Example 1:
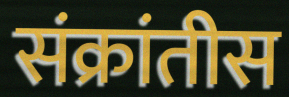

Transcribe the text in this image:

संक्रांतीस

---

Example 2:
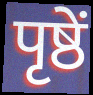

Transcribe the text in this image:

पृष्ठें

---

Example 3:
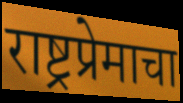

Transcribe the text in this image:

राष्ट्रप्रेमाचा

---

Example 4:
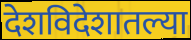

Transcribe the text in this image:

देशविदेशातल्या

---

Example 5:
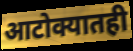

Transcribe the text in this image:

आटोक्यातही